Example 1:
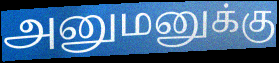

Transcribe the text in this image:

அனுமனுக்கு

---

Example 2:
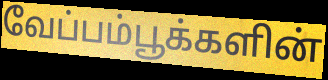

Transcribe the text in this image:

வேப்பம்பூக்களின்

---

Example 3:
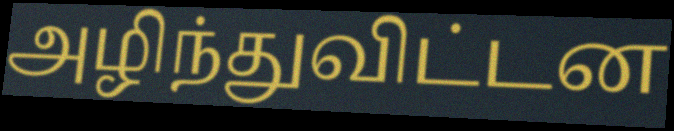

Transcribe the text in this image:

அழிந்துவிட்டன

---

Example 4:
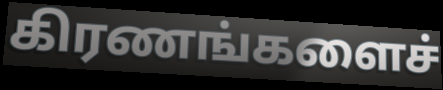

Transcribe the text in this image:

கிரணங்களைச்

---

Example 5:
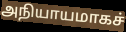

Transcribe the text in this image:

அநியாயமாகச்